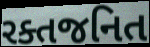
રક્તજનિત